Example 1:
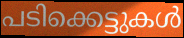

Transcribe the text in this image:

പടിക്കെട്ടുകൾ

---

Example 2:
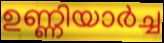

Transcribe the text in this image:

ഉണ്ണിയാർച്ച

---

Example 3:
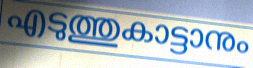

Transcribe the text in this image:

എടുത്തുകാട്ടാനും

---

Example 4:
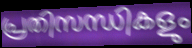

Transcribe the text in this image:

പ്രതിസന്ധികളും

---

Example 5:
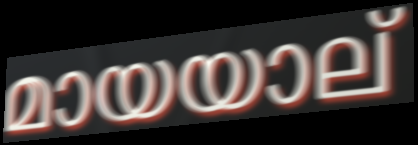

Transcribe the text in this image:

മായയാല്